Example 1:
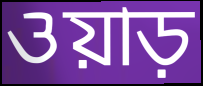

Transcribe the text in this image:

ওয়াড়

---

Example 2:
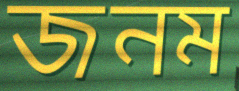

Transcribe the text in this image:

জনম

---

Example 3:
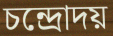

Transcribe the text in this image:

চন্দ্রোদয়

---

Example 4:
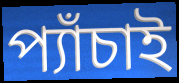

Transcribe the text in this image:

প্যাঁচাই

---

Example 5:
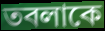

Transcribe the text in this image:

তবলাকে